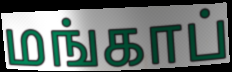
மங்காப்